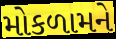
મોકળામને